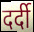
दर्दी